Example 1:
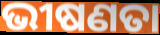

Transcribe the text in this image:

ଭୀଷଣତା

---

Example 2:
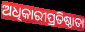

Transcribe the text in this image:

ଅଧିକାରୀପ୍ରତିଷ୍ଠାତା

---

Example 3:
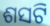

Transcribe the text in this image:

ଶସଟି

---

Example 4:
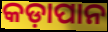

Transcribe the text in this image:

କଡ଼ାପାନ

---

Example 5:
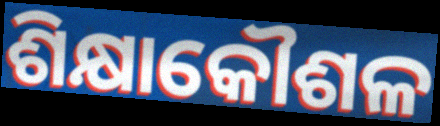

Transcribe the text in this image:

ଶିକ୍ଷାକୌଶଳ